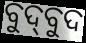
ବୁଦ୍‍ବୁଦ